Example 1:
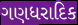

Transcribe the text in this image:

ગણધરાદિક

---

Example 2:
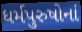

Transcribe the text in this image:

ધર્મપુરુષોનાં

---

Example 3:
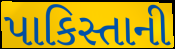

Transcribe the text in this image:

પાકિસ્તાની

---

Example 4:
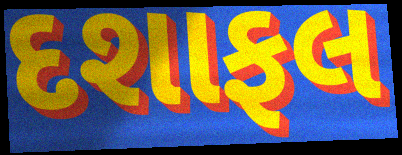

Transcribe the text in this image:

દશાફલ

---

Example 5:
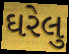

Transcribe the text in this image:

ઘરેલુ